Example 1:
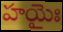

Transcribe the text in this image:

హయైః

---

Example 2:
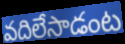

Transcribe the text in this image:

వదిలేసాడంట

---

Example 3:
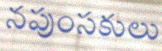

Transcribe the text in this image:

నపుంసకులు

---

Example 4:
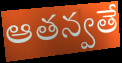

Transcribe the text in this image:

ఆతన్వతే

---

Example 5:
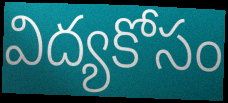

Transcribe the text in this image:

విద్యకోసం